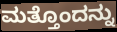
ಮತ್ತೊಂದನ್ನು